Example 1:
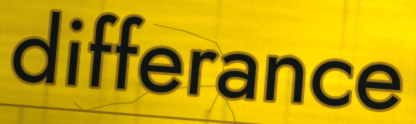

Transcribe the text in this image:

differance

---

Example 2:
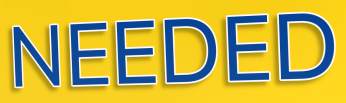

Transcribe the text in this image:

NEEDED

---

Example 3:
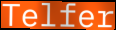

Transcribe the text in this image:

Telfer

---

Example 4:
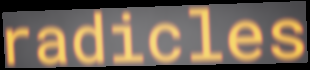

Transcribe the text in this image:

radicles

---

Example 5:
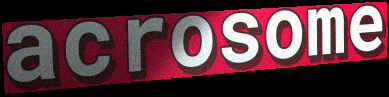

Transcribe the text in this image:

acrosome